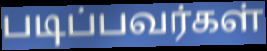
படிப்பவர்கள்